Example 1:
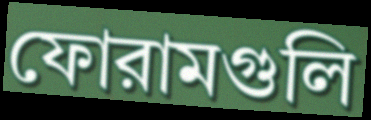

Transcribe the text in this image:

ফোরামগুলি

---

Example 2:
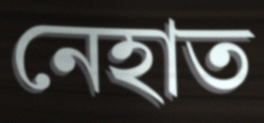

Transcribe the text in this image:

নেহাত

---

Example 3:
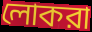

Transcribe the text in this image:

লোকরা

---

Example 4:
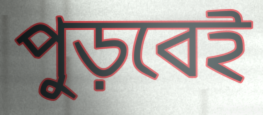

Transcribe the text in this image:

পুড়বেই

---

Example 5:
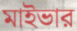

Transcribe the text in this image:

মাইভার